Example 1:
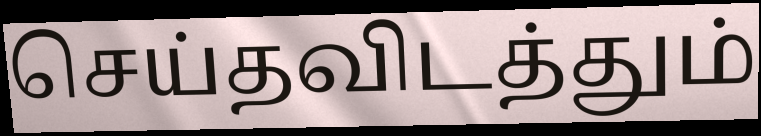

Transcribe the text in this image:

செய்தவிடத்தும்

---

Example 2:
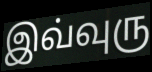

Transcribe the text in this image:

இவ்வுரு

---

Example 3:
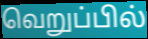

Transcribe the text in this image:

வெறுப்பில்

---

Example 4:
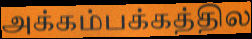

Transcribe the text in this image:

அக்கம்பக்கத்தில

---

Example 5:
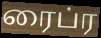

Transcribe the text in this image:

ரைப்ர